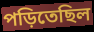
পড়িতেছিল